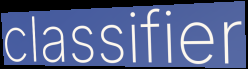
classifier